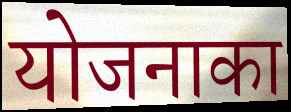
योजनाका